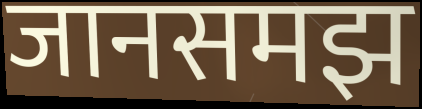
जानसमझ